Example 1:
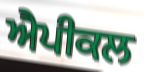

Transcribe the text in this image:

ਐਪੀਕਲ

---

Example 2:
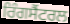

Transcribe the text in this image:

ਰਿੰਗਸੈਂਟਰਲ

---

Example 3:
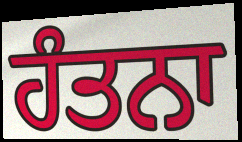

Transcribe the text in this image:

ਹੰਤਨਾ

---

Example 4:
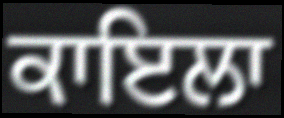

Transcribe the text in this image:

ਕਾਇਲਾ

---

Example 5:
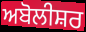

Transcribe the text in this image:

ਅਬੋਲੀਸ਼ਰ